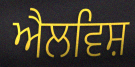
ਐਲਵਿਸ਼